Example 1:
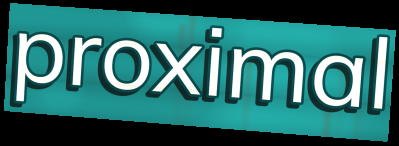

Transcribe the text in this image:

proximal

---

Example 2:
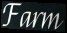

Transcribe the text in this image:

Farm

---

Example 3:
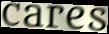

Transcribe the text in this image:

cares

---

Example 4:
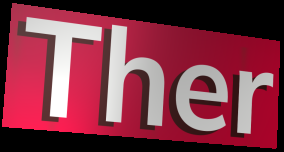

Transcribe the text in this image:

Ther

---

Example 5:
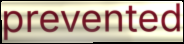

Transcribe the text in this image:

prevented